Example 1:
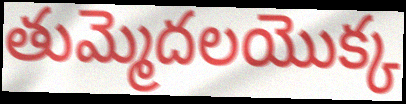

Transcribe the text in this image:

తుమ్మెదలయొక్క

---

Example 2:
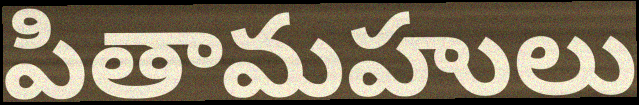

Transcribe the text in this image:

పితామహులు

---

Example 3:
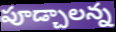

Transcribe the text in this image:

పూడ్చాలన్న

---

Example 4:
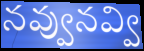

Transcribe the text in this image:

నవ్వునవ్వి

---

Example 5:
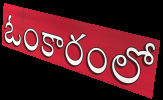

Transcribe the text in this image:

ఓంకారంలో